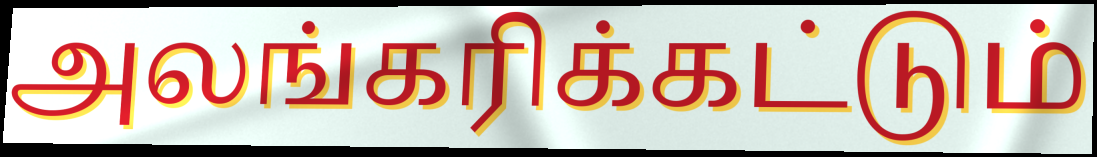
அலங்கரிக்கட்டும்